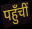
पहुँचीं